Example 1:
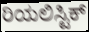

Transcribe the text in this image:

ರಿಯಲಿಸ್ಟಿಕ್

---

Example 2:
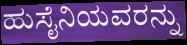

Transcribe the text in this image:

ಹುಸೈನಿಯವರನ್ನು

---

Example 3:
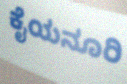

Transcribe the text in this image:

ಕೈಯನೂರಿ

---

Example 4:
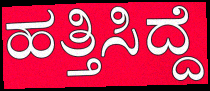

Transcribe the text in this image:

ಹತ್ತಿಸಿದ್ದೆ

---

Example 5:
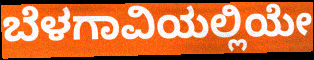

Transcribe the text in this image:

ಬೆಳಗಾವಿಯಲ್ಲಿಯೇ